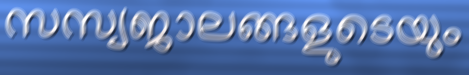
സസ്യജാലങ്ങളുടെയും